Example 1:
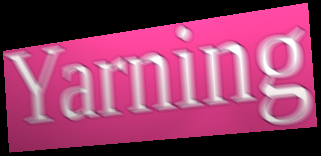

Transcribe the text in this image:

Yarning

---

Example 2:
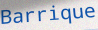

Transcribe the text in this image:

Barrique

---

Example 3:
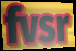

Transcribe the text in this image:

fvsr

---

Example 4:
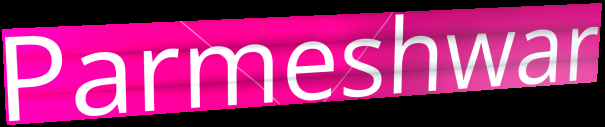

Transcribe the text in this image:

Parmeshwar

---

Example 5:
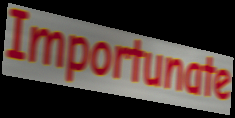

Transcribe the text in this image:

Importunate